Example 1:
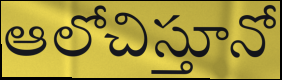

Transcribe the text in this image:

ఆలోచిస్తూనో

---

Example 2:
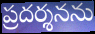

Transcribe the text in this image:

ప్రదర్శనను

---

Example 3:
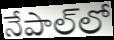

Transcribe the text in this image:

నేపాల్‌లో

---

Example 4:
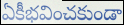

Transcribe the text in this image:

ఏకీభవించకుండా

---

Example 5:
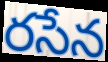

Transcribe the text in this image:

రసేన